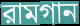
রামগান